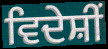
ਵਿਦੇਸ਼ੀਂ